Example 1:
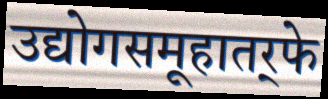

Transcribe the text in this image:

उद्योगसमूहातर्फे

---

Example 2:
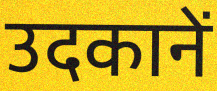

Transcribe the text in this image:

उदकानें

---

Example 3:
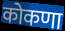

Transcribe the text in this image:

कोकणा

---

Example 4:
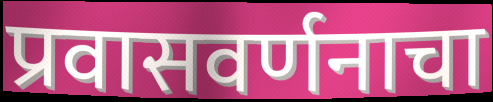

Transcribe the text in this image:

प्रवासवर्णनाचा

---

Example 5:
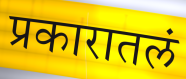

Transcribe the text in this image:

प्रकारातलं